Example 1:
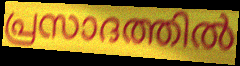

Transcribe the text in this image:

പ്രസാദത്തിൽ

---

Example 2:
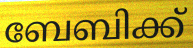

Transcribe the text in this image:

ബേബിക്ക്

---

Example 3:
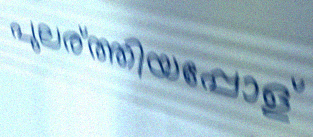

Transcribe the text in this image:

പുലര്ത്തിയപ്പോള്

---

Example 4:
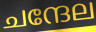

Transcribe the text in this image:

ചന്ദേല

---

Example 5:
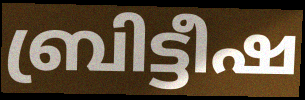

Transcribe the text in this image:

ബ്രിട്ടീഷ